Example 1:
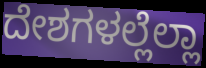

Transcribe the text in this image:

ದೇಶಗಳಲ್ಲೆಲ್ಲಾ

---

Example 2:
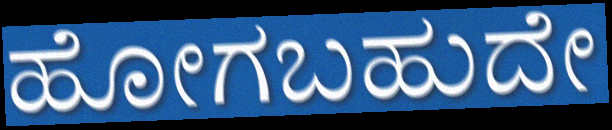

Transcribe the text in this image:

ಹೋಗಬಹುದೇ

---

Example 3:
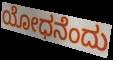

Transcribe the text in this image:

ಯೋಧನೆಂದು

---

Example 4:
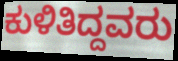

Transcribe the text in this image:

ಕುಳಿತಿದ್ದವರು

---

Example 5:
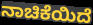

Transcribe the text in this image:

ನಾಚಿಕೆಯಿದೆ